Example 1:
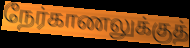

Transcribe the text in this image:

நேர்காணலுக்குத்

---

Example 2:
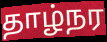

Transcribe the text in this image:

தாழ்நர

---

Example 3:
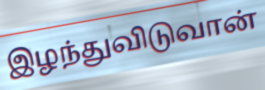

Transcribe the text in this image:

இழந்துவிடுவான்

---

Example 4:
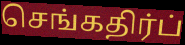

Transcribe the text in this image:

செங்கதிர்ப்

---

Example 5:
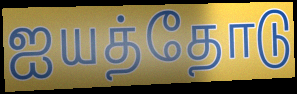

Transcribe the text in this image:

ஐயத்தோடு